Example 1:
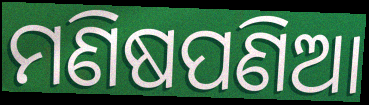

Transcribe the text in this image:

ମଣିଷପଣିଆ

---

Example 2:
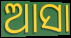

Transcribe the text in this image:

ଆସା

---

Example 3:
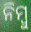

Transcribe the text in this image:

ନିମ୍ବୁ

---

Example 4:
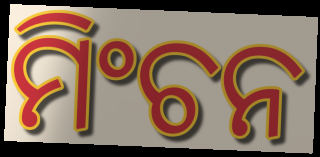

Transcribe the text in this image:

ମିଂଚନ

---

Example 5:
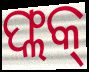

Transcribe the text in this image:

ଫ୍ଲକ୍